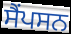
ਸੈਂਪਸਨ